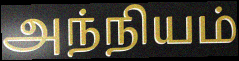
அந்நியம்